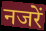
नजरें